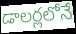
డాలర్లలోనే